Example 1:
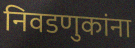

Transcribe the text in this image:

निवडणुकांना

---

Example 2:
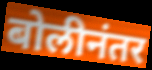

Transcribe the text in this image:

बोलीनंतर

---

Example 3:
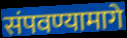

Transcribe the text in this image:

संपवण्यामागे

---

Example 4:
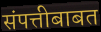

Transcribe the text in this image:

संपत्तीबाबत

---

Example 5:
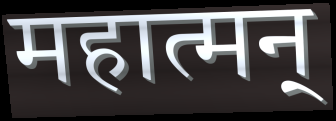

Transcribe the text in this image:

महात्मन्